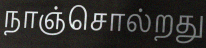
நாஞ்சொல்றது